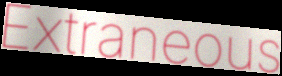
Extraneous